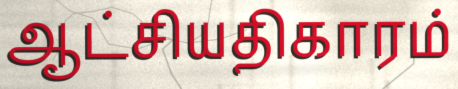
ஆட்சியதிகாரம்